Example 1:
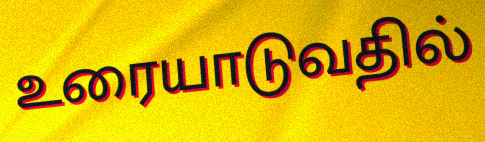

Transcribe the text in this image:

உரையாடுவதில்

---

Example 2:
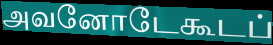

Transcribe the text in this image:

அவனோடேகூடப்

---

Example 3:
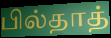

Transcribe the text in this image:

பில்தாத்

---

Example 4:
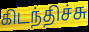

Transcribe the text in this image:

கிடந்திச்சு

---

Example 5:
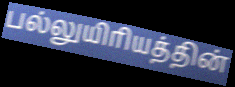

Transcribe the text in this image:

பல்லுயிரியத்தின்